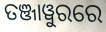
ତଞ୍ଜାୱୁରରେ